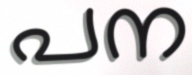
പന